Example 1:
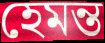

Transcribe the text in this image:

হেমন্ত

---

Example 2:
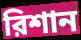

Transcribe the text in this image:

রিশান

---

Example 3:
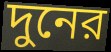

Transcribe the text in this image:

দুনের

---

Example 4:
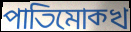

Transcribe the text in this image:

পাতিমোক্খ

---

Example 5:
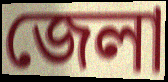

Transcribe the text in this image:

জেলা